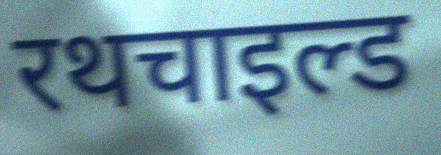
रथचाइल्ड